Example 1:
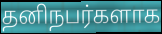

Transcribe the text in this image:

தனிநபர்களாக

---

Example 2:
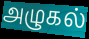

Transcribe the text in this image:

அழுகல்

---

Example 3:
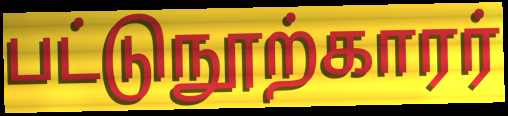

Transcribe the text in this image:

பட்டுநூற்காரர்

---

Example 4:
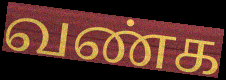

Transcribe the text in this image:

வண்க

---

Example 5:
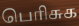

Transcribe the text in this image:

பெரிசுக